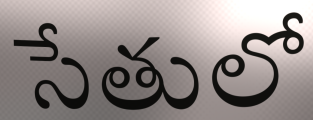
సేతులో